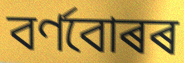
বৰ্ণবোৰৰ